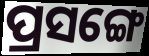
ପ୍ରସଙ୍ଗେ